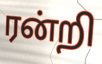
ரன்றி